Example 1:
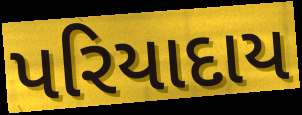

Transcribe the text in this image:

પરિયાદાય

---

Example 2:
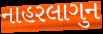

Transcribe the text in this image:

નાહરલાગુન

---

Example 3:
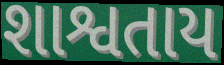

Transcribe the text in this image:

શાશ્વતાય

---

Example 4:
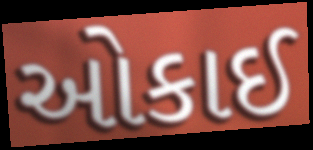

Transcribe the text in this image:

ઓકાઈ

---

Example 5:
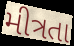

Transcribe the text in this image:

મીત્રતા